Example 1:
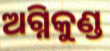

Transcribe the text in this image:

ଅଗ୍ନିକୁଣ୍ଡ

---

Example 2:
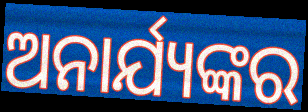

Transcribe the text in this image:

ଅନାର୍ଯ୍ୟଙ୍କର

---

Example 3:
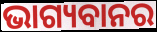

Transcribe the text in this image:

ଭାଗ୍ୟବାନର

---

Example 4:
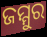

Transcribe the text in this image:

ଜମ୍ମୁର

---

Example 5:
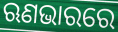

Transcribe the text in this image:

ଋଣଭାରରେ